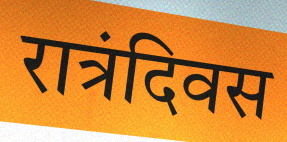
रात्रंदिवस